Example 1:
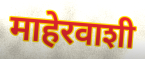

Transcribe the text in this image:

माहेरवाशी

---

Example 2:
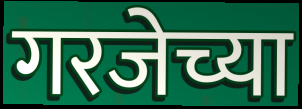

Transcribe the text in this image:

गरजेच्या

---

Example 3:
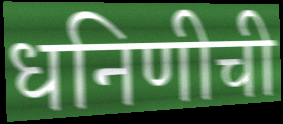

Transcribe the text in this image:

धनिणीची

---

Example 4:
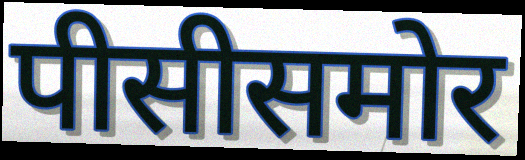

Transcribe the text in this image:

पीसीसमोर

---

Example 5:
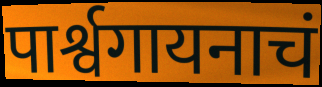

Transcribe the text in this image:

पार्श्वगायनाचं